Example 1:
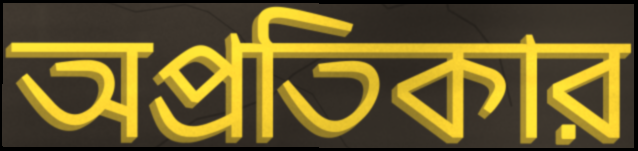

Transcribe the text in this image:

অপ্রতিকার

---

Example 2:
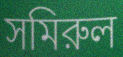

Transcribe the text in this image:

সমিরুল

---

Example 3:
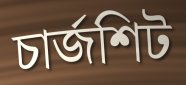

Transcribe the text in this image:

চার্জশিট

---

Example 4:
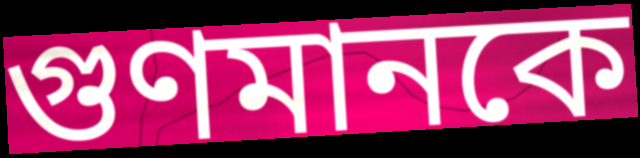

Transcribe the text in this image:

গুণমানকে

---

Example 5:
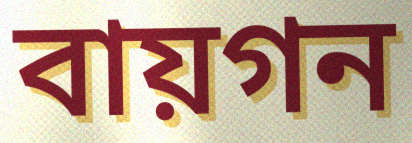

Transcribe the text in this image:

বায়গন